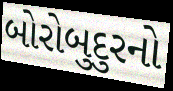
બોરોબુદુરનો